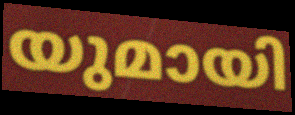
യുമായി